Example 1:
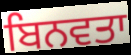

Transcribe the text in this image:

ਬਿਨਵਤਾ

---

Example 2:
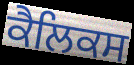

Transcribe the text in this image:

ਕੈਲਿਕਸ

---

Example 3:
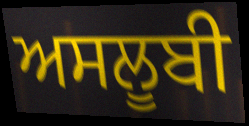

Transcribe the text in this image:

ਅਸਲੂਬੀ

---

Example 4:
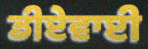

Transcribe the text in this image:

ਡੀਏਵਾਈ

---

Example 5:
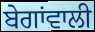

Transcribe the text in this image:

ਬੇਗਾਂਵਾਲੀ